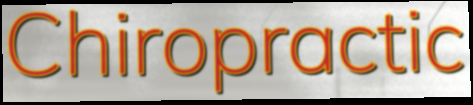
Chiropractic